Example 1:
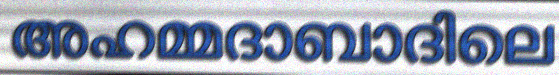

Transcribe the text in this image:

അഹമ്മദാബാദിലെ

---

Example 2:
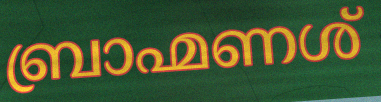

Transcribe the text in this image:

ബ്രാഹ്മണശ്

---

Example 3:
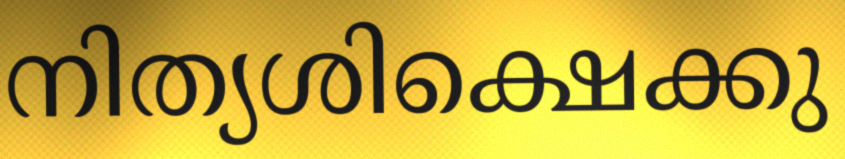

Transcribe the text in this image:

നിത്യശിക്ഷെക്കു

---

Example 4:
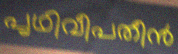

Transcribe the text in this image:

പൃഥിവീപതീൻ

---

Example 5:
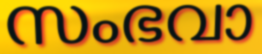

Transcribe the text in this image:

സംഭവാ